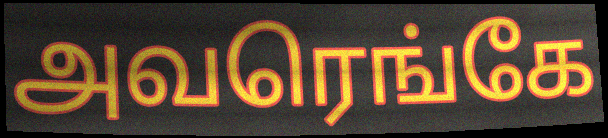
அவரெங்கே